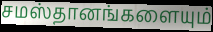
சமஸ்தானங்களையும்